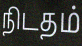
நிடதம்